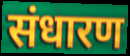
संधारण